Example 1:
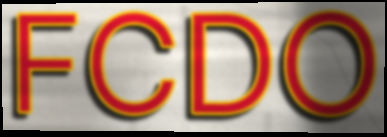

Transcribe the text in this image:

FCDO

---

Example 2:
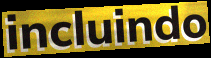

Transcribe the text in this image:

incluindo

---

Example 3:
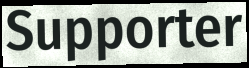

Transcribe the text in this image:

Supporter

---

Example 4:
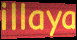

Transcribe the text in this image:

illaya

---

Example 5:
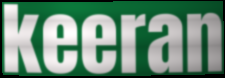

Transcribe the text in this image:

keeran